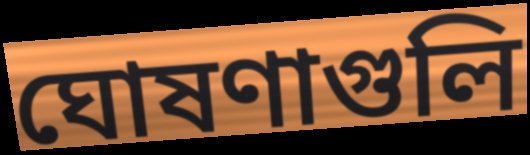
ঘোষণাগুলি